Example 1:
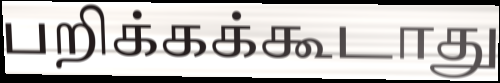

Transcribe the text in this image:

பறிக்கக்கூடாது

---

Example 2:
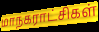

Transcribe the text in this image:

மாநகராட்சிகள்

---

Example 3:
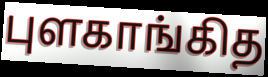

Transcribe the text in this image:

புளகாங்கித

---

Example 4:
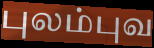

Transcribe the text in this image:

புலம்புவ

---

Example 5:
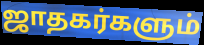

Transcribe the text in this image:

ஜாதகர்களும்